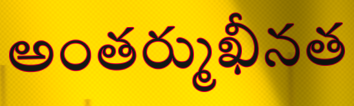
అంతర్ముఖీనత